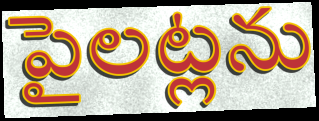
పైలట్లను